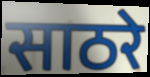
साठरे